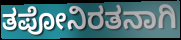
ತಪೋನಿರತನಾಗಿ